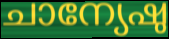
ചാന്യേഷു